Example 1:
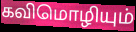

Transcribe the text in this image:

கவிமொழியும்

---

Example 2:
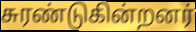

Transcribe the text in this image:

சுரண்டுகின்றனர்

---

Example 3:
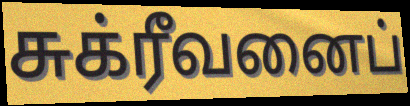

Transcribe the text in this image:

சுக்ரீவனைப்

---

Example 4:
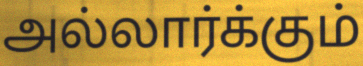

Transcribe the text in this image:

அல்லார்க்கும்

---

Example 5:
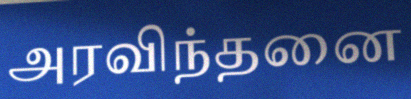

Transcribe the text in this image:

அரவிந்தனை